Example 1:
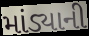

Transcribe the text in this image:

માંડ્યાની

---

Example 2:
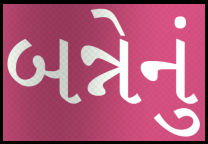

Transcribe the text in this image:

બન્નેનું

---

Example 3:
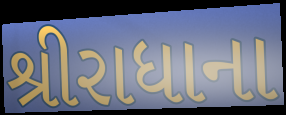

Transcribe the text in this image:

શ્રીરાધાના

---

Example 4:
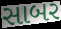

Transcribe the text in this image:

સાબર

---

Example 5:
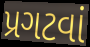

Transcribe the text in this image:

પ્રગટવાં